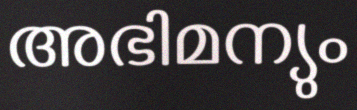
അഭിമന്യും